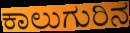
ಕಾಲುಗುರಿನ